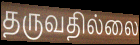
தருவதில்லை